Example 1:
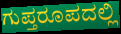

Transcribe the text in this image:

ಗುಪ್ತರೂಪದಲ್ಲಿ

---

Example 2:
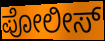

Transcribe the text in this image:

ಪೋಲೀಸ್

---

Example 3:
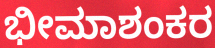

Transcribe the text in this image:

ಭೀಮಾಶಂಕರ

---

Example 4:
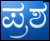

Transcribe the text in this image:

ಪ್ರಶ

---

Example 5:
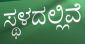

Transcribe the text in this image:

ಸ್ಥಳದಲ್ಲಿವೆ